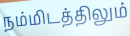
நம்மிடத்திலும்